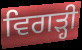
ਵਿਗੜ੍ਹੀ